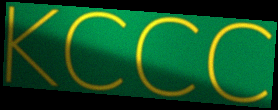
KCCC